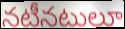
నటీనటులూ